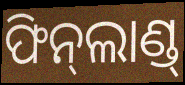
ଫିନ୍‌ଲାଣ୍ଡ୍